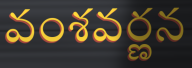
వంశవర్ణన